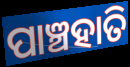
ପାଞ୍ଚହାତି